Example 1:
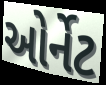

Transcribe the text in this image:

ઓર્નેટ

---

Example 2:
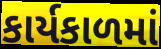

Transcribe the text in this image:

કાર્યકાળમાં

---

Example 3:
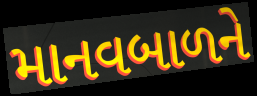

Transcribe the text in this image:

માનવબાળને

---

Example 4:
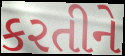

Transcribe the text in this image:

કરતીને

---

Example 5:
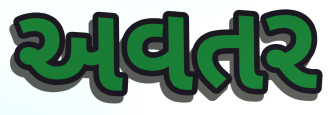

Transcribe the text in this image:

અવતર